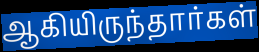
ஆகியிருந்தார்கள்